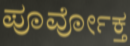
ಪೂರ್ವೋಕ್ತ